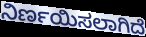
ನಿರ್ಣಯಿಸಲಾಗಿದೆ